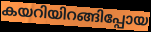
കയറിയിറങ്ങിപ്പോയ